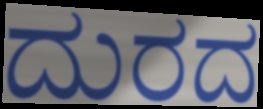
ದುರದ